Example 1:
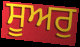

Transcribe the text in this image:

ਸੂਅਰੁ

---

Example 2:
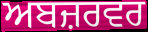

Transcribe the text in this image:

ਅਬਜ਼ਰਵਰ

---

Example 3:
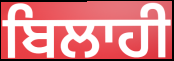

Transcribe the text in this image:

ਬਿਲਾਹੀ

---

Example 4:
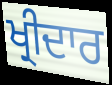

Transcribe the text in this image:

ਖ੍ਰੀਦਾਰ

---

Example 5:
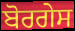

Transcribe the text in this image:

ਬੋਰਗੇਸ